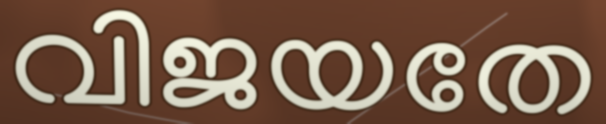
വിജയതേ